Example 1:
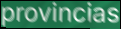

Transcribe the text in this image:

provincias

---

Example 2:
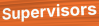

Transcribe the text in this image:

Supervisors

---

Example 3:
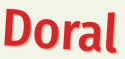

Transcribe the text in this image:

Doral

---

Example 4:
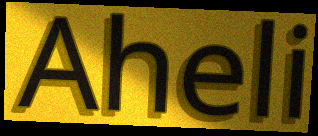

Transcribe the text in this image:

Aheli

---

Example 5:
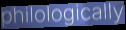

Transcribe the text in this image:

philologically